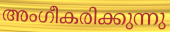
അംഗീകരിക്കുന്നു